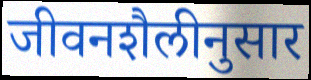
जीवनशैलीनुसार